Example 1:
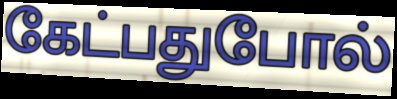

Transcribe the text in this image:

கேட்பதுபோல்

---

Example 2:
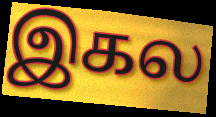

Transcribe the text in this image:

இகல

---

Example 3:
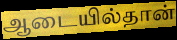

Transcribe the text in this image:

ஆடையில்தான்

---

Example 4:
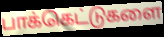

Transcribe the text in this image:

பாக்கெட்டுகளை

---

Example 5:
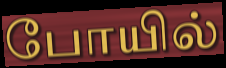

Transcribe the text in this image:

போயில்